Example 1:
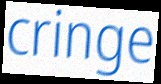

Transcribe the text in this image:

cringe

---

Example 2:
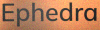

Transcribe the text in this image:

Ephedra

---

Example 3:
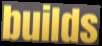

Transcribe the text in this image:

builds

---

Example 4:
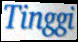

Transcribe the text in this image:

Tinggi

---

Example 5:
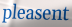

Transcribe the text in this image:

pleasent